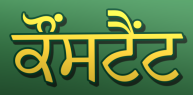
ਕੌਂਸਟੈਂਟ